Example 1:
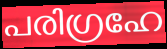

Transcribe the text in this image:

പരിഗ്രഹേ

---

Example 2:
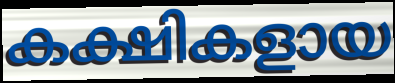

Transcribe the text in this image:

കക്ഷികളായ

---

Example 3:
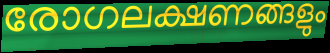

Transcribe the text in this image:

രോഗലക്ഷണങ്ങളും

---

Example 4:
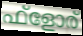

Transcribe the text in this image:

ഫ്ളോര്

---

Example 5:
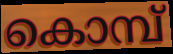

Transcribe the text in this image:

കൊമ്പ്